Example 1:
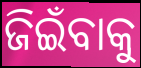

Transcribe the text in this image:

ଜିଇଁବାକୁ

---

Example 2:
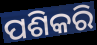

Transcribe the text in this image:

ପଶିକରି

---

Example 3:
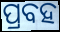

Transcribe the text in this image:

ପ୍ରବହ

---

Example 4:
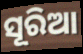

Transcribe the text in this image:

ସୂରିଆ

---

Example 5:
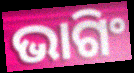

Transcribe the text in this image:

ଭାଗିଂ